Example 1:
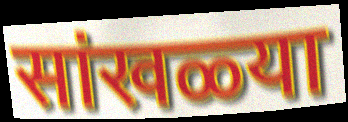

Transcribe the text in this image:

सांखळ्या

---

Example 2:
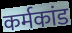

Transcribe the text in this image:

कर्मकांड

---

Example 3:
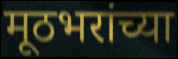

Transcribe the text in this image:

मूठभरांच्या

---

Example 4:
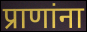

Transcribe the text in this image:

प्राणांना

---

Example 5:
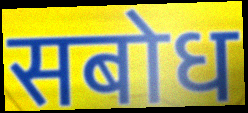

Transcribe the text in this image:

सबोध